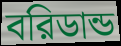
বরিডান্ড